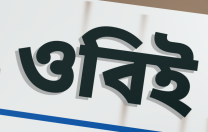
ওবিই